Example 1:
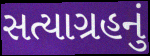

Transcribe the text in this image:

સત્યાગ્રહનું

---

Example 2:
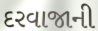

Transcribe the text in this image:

દરવાજાની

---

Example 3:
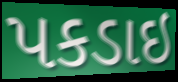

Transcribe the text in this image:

પકડાઇ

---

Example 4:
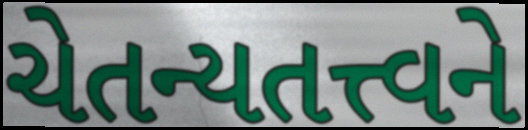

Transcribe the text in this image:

ચેતન્યતત્ત્વને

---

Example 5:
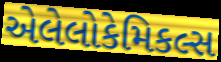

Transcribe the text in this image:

એલેલોકેમિકલ્સ